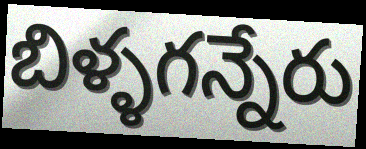
బిళ్ళగన్నేరు